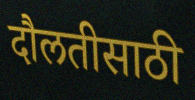
दौलतीसाठी